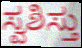
ಸ್ವಶಿಸ್ತು